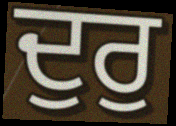
ਦੁਰੁ